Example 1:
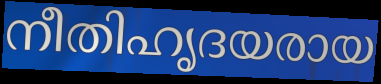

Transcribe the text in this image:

നീതിഹൃദയരായ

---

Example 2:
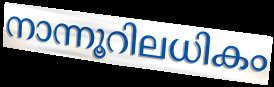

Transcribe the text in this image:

നാന്നൂറിലധികം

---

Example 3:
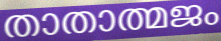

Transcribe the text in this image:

താതാത്മജം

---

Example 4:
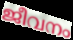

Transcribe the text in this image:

ജീവനം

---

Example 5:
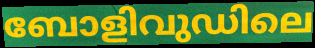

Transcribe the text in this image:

ബോളിവുഡിലെ